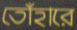
তোঁহারে